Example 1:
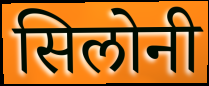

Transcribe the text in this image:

सिलोनी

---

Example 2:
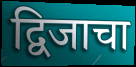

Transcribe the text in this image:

द्विजाचा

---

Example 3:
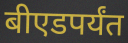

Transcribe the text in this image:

बीएडपर्यंत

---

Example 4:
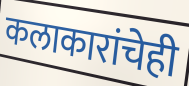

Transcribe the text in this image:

कलाकारांचेही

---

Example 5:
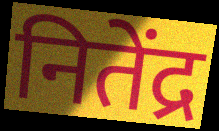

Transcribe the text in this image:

नितेंद्र